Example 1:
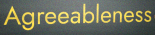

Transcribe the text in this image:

Agreeableness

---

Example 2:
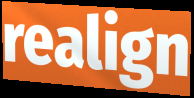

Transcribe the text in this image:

realign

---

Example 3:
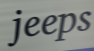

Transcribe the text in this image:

jeeps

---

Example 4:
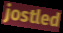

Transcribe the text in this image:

jostled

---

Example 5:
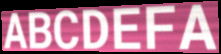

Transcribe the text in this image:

ABCDEFA